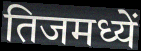
तिजमध्यें